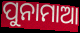
ପୁନାମାଆ